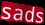
sads